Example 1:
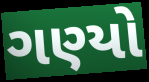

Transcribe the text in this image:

ગણ્યો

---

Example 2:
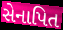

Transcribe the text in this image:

સેનાપિત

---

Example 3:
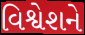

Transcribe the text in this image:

વિશ્વેશને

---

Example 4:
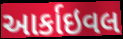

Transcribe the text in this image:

આર્કાઇવલ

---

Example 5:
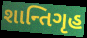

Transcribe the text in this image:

શાન્તિગૃહ